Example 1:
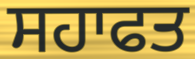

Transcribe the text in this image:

ਸਹਾਫਤ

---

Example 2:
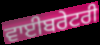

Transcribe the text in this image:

ਵਾਈਬਰੇਟਰੀ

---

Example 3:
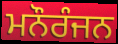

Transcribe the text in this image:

ਮਨੌਰੰਜਨ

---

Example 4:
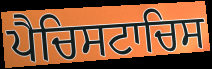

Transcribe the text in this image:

ਪੈਚਿਸਟਾਚਿਸ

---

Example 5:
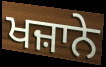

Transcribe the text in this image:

ਖਜ਼ਾਨੇ